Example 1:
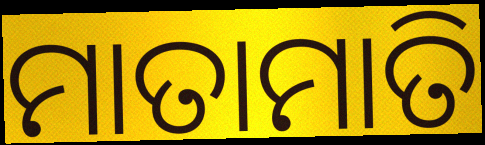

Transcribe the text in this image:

ମାତାମାତି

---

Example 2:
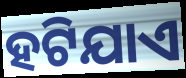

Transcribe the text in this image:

ହଟିଯାଏ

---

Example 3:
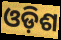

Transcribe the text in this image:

ଓଡ଼ିଶ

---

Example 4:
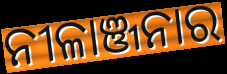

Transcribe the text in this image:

ନୀଳାଞ୍ଜନାର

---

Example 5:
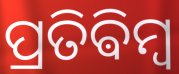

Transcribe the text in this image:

ପ୍ରତିଵିମ୍ବ